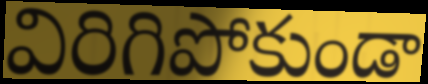
విరిగిపోకుండా